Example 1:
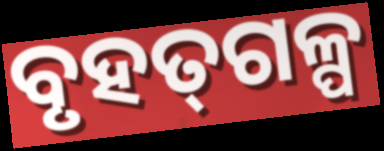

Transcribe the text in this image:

ବୃହତ୍‌ଗଳ୍ପ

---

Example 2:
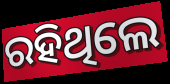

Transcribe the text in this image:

ରହିଥିଲେ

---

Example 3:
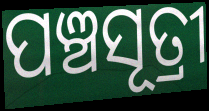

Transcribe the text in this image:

ପଞ୍ଚସୂତ୍ରୀ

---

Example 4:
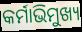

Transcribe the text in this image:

କର୍ମାଭିମୁଖ୍ୟ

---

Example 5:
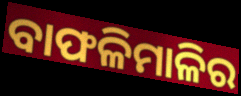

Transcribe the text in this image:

ବାଫଳିମାଳିର